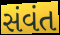
સંવંત